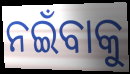
ନଇଁବାକୁ